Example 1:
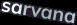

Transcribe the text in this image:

sarvana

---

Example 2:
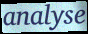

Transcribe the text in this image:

analyse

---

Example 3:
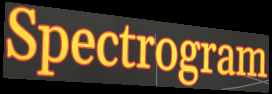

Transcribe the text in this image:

Spectrogram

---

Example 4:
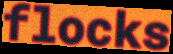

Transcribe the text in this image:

flocks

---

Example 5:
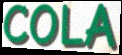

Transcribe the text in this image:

COLA